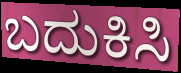
ಬದುಕಿಸಿ